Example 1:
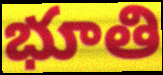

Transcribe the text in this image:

భూతి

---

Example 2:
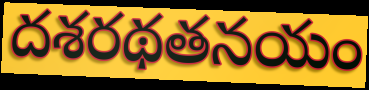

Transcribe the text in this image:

దశరథతనయం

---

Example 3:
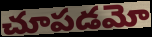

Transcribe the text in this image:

చూపడమో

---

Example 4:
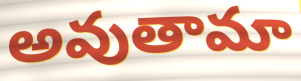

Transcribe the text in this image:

అవుతామా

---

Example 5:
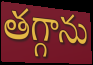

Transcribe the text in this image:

తగ్గాను